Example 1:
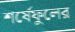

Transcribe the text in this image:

শর্ষেফুলের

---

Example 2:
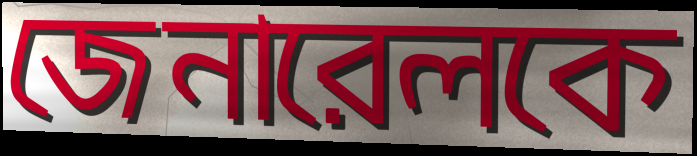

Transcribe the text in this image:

জেনারেলকে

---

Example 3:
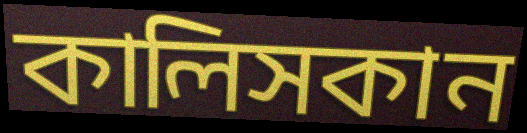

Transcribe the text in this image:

কালিসকান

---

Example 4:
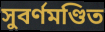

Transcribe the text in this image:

সুবর্ণমণ্ডিত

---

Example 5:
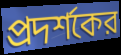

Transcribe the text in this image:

প্রদর্শকের